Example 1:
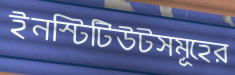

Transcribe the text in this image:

ইনস্টিটিউটসমূহের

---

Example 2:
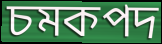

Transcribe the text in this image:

চমকপদ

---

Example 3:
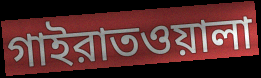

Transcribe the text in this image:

গাইরাতওয়ালা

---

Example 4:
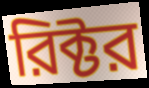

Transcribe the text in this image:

রিক্টর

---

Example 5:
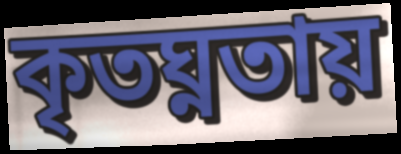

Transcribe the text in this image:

কৃতঘ্নতায়